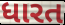
ધારત